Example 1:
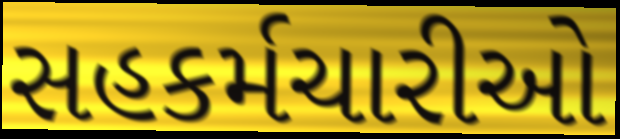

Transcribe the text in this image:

સહકર્મચારીઓ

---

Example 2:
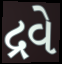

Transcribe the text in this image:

દ્રવે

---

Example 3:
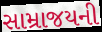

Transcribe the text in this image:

સામ્રાજયની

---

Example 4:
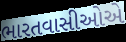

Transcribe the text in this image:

ભારતવાસીઓએ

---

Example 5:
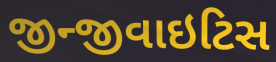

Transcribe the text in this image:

જીન્જીવાઇટિસ